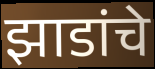
झाडांचे